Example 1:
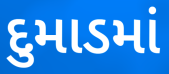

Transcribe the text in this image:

દુમાડમાં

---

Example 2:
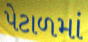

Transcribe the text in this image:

પેટાળમાં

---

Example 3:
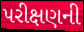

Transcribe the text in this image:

પરીક્ષણની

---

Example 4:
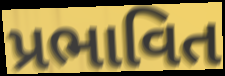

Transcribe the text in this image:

પ્રભાવિત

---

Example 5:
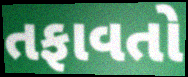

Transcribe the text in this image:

તફાવતો